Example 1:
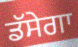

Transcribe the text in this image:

ਡੱਸੇਗਾ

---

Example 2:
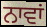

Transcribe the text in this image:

ਨਾਵਾਂ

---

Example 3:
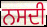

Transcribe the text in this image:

ਨਸਦੀ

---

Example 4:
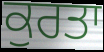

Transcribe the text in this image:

ਕੁਰਤਾ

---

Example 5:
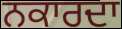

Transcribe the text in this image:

ਨਕਾਰਦਾ